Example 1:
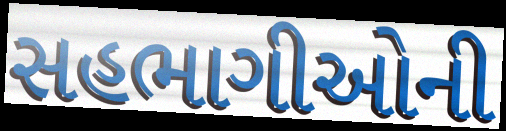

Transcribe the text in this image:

સહભાગીઓની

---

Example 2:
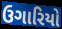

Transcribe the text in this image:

ઉગારિયો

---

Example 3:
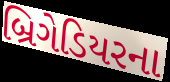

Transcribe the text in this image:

બ્રિગેડિયરના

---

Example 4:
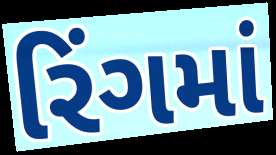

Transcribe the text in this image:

રિંગમાં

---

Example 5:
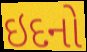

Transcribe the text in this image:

ઇદનો